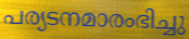
പര്യടനമാരംഭിച്ചു